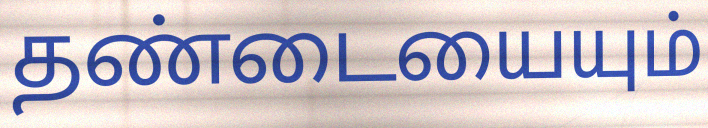
தண்டையையும்